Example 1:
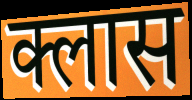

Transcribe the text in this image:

क्लास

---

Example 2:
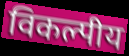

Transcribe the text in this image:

विकल्पीय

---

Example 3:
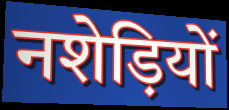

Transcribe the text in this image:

नशेड़ियों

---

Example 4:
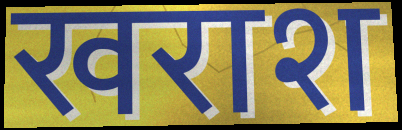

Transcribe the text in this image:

खराश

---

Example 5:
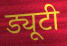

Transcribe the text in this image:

ड्यूटी